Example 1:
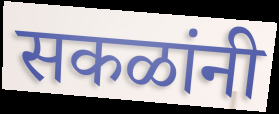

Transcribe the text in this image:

सकळांनी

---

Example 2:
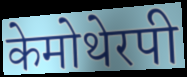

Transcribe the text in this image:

केमोथेरपी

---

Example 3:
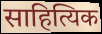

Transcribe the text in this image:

साहित्यिक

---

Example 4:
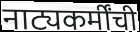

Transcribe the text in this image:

नाट्यकर्मींची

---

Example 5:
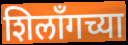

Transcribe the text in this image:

शिलॉंगच्या